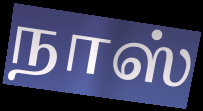
நாஸ்